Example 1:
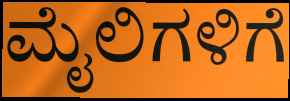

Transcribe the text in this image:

ಮೈಲಿಗಳಿಗೆ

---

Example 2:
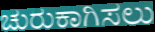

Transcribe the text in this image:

ಚುರುಕಾಗಿಸಲು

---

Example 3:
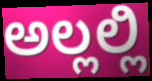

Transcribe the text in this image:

ಅಲ್ಲಲ್ಲಿ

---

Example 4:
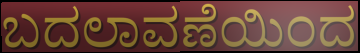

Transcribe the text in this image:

ಬದಲಾವಣೆಯಿಂದ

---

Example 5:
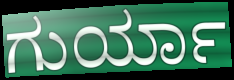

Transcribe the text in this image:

ಗುರ್ಯಾ